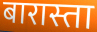
बारास्ता